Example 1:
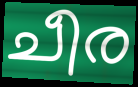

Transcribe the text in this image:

ചീര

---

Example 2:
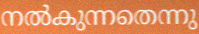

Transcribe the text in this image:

നൽകുന്നതെന്നു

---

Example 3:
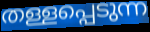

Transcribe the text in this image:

തള്ളപ്പെടുന്ന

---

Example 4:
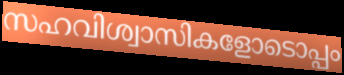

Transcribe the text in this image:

സഹവിശ്വാസികളോടൊപ്പം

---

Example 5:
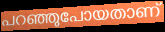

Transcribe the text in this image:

പറഞ്ഞുപോയതാണ്